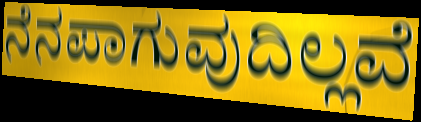
ನೆನಪಾಗುವುದಿಲ್ಲವೆ